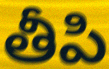
తీపి